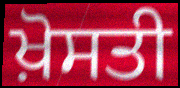
ਖ਼ੋਸਤੀ